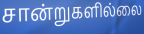
சான்றுகளில்லை